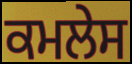
ਕਮਲੇਸ